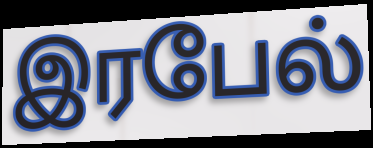
இரபேல்